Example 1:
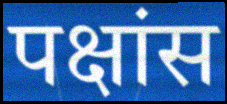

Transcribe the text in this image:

पक्षांस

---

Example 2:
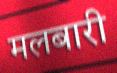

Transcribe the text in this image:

मलबारी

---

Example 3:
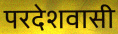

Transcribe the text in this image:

परदेशवासी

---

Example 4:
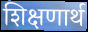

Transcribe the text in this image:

शिक्षणार्थ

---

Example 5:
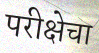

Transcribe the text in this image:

परीक्षेचा